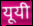
यूयी